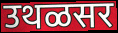
उथळसर